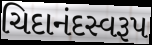
ચિદાનંદસ્વરૂપ